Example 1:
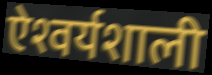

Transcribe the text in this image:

ऐश्वर्यशाली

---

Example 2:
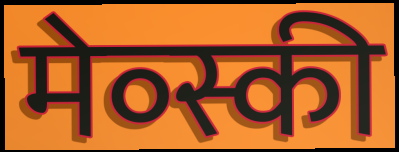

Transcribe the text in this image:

मेव्स्की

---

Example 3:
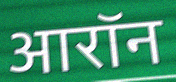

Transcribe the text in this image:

आरॉन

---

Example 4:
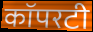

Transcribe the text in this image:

कॉपरटी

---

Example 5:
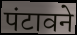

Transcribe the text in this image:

पंटावने